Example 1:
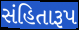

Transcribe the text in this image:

સંહિતારૂપ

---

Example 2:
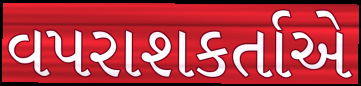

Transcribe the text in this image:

વપરાશકર્તાએ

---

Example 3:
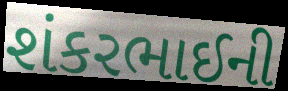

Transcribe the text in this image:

શંકરભાઈની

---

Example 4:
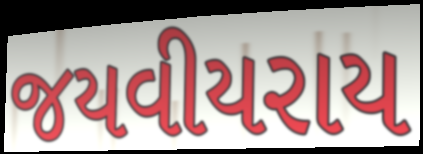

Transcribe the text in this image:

જયવીયરાય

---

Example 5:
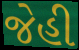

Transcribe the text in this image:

જેહી